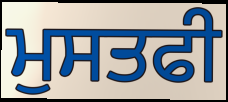
ਮੁਸਤਫੀ